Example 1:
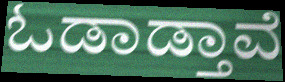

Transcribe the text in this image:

ಓಡಾಡ್ತಾವೆ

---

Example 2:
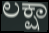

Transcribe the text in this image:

ಲಕ್ಷಾ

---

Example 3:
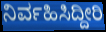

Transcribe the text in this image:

ನಿರ್ವಹಿಸಿದ್ದೀರಿ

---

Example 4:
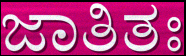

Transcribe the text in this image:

ಜಾತಿತಃ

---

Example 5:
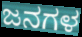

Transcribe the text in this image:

ಜನಗಳ